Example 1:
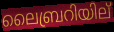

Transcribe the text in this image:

ലൈബ്രറിയില്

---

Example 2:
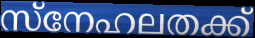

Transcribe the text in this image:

സ്നേഹലതക്ക്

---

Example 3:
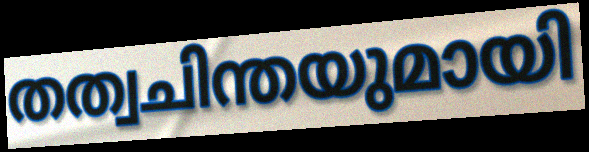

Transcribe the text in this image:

തത്വചിന്തയുമായി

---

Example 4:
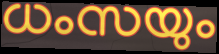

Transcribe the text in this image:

ധംസയും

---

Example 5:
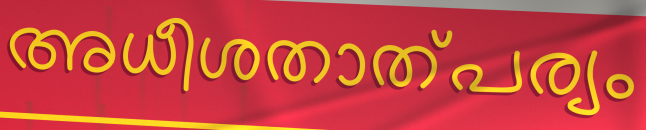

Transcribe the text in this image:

അധീശതാത്പര്യം